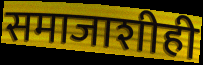
समाजाशीही